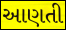
આણતી